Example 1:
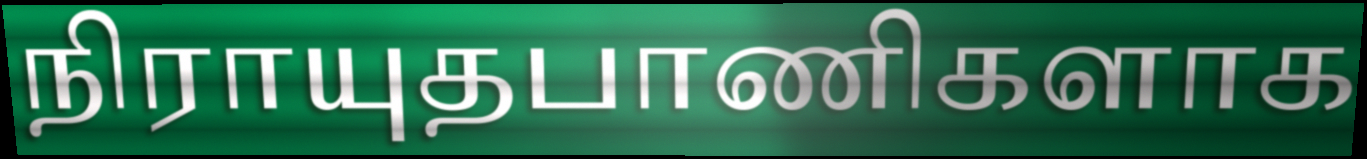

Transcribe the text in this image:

நிராயுதபாணிகளாக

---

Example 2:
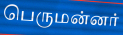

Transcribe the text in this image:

பெருமன்னர்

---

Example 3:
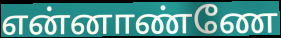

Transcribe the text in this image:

என்னாண்ணே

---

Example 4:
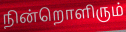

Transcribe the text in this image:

நின்றொளிரும்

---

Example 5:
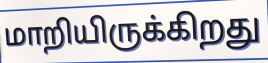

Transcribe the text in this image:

மாறியிருக்கிறது